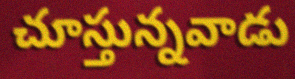
చూస్తున్నవాడు